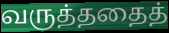
வருத்ததைத்